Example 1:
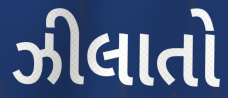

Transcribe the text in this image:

ઝીલાતો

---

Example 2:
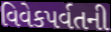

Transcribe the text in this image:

વિવેકપર્વતની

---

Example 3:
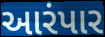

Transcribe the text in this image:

આરંપાર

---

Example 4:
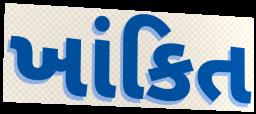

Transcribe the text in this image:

ખાંકિત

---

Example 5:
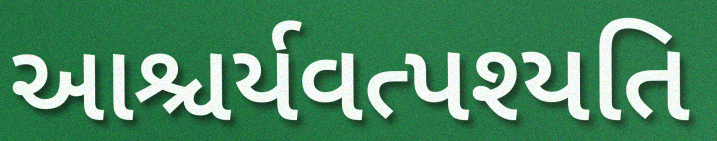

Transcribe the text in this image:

આશ્ચર્યવત્પશ્યતિ